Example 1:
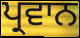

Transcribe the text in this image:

ਪ੍ਰਵਾਨ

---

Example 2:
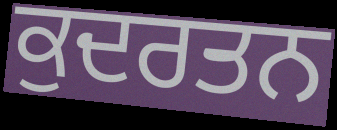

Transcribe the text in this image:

ਕੁਦਰਤਨ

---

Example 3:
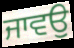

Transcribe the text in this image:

ਜਾਵਉ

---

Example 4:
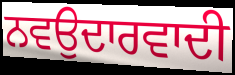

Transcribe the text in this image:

ਨਵਉਦਾਰਵਾਦੀ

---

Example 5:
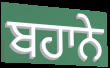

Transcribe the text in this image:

ਬਹਾਨੇ